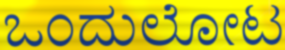
ಒಂದುಲೋಟ